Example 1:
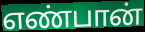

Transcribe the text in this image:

எண்பான்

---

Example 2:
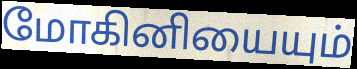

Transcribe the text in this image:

மோகினியையும்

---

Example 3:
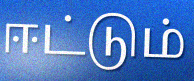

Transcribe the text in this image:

ஈட்டும்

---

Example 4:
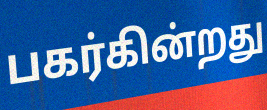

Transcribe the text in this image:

பகர்கின்றது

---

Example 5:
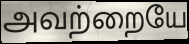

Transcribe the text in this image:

அவற்றையே